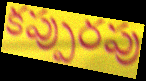
కప్పురపు